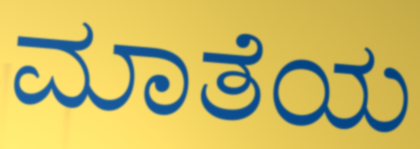
ಮಾತೆಯ